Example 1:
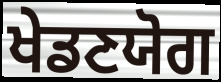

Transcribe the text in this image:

ਖੇਡਣਯੋਗ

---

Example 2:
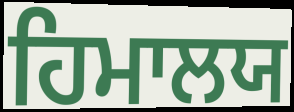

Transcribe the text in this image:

ਹਿਮਾਲਯ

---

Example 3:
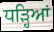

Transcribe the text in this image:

ਧੜ੍ਹਿਆਂ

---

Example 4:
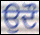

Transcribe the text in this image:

ਉਦੌ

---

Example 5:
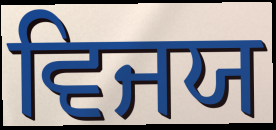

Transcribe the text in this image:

ਵਿਜਯ